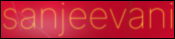
sanjeevani